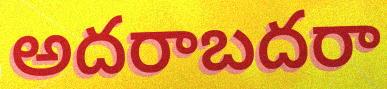
అదరాబదరా